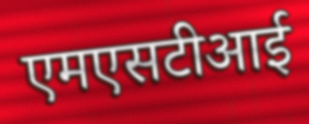
एमएसटीआई